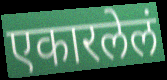
एकारलेलं